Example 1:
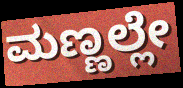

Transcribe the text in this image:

ಮಣ್ಣಲ್ಲೇ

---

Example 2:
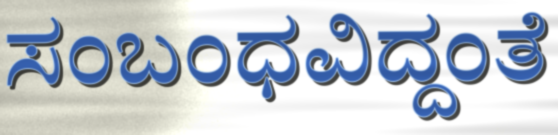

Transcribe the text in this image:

ಸಂಬಂಧವಿದ್ದಂತೆ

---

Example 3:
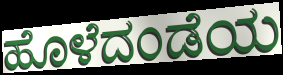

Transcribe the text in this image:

ಹೊಳೆದಂಡೆಯ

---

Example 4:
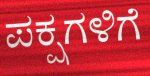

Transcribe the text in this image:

ಪಕ್ಷಗಳಿಗೆ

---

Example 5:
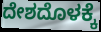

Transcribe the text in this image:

ದೇಶದೊಳಕ್ಕೆ